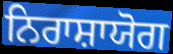
ਨਿਰਾਸ਼ਾਯੋਗ